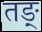
तङ्